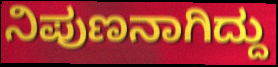
ನಿಪುಣನಾಗಿದ್ದು